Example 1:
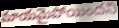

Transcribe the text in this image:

మాయమైపోయిందని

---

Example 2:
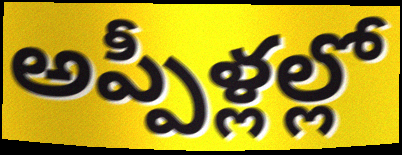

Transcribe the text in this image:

అప్పీళ్లల్లో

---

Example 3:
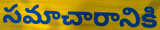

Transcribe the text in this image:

సమాచారానికి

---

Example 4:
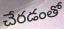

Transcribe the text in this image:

చేరడంతో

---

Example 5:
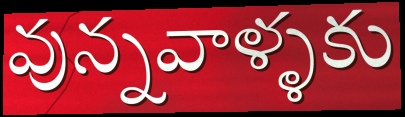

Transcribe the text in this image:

వున్నవాళ్ళకు